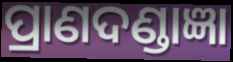
ପ୍ରାଣଦଣ୍ଡାଜ୍ଞା